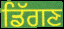
ਡਿੱਗਣ